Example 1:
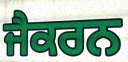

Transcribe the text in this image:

ਜੈਕਰਨ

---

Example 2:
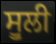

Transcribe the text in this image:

ਸੂਲੀ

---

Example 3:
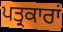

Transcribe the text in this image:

ਪਤ੍ਰਕਾਰਾਂ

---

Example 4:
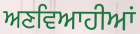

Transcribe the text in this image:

ਅਣਵਿਆਹੀਆਂ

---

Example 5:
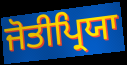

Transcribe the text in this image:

ਜੋਤੀਪ੍ਰਿਯਾ